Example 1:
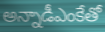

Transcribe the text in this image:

అన్నాడీఎంకేతో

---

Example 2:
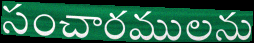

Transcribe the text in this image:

సంచారములను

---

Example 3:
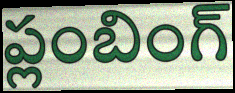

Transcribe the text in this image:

ప్లంబింగ్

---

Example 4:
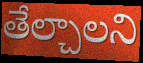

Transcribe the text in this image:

తేల్చాలని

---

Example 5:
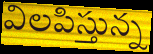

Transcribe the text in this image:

విలపిస్తున్న